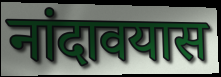
नांदावयास